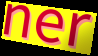
ner